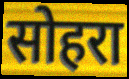
सोहरा